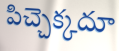
పిచ్చెక్కదూ